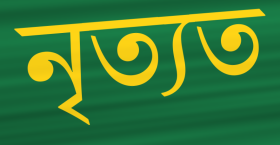
নৃত্যত